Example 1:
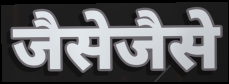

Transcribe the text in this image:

जैसेजैसे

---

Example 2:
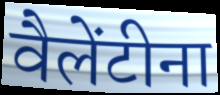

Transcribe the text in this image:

वैलेंटीना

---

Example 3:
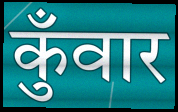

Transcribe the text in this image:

कुँवार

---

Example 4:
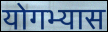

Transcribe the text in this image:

योगभ्यास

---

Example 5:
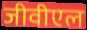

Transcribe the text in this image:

जीवीएल